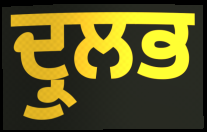
ਦ੍ਰੁਲਭ